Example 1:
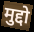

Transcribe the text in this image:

मुद्दो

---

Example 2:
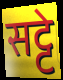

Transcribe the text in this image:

सट्टे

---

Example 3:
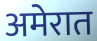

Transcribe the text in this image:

अमेरात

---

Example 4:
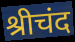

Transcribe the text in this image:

श्रीचंद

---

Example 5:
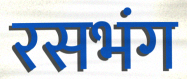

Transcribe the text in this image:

रसभंग